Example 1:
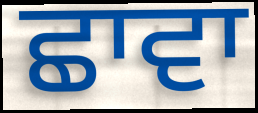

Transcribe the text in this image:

ਛਾਵਾ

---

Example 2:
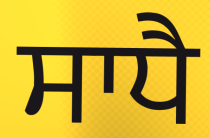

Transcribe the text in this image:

ਸਾਧੈ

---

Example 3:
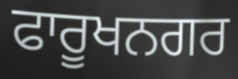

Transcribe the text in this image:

ਫਾਰੂਖਨਗਰ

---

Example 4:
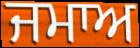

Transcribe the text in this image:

ਜਮਾਅ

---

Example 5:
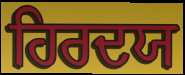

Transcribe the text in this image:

ਹਿਰਦਯ